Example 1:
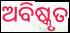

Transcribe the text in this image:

ଅବିଷ୍କୃତ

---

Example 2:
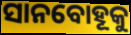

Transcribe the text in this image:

ସାନବୋହୂକୁ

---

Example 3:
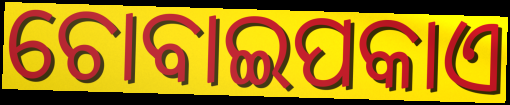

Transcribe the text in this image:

ଚୋବାଇପକାଏ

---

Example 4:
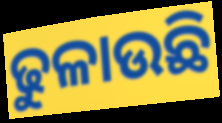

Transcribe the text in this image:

ଢୁଳାଉଛି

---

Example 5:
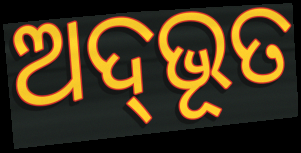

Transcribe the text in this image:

ଅଦ୍‍ଭୂତ